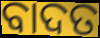
ବାଦତ